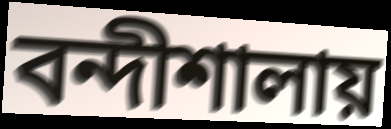
বন্দীশালায়